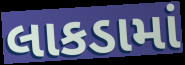
લાકડામાં